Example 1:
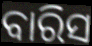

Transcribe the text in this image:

ବାରିସ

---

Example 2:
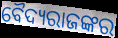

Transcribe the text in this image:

ବୈଦ୍ୟରାଜଙ୍କର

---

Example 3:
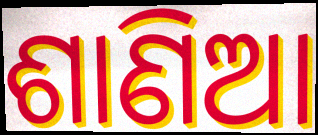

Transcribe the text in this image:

ଶାଣିଆ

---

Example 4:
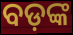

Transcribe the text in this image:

ବଡ଼ଙ୍କ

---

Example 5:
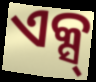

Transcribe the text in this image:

ଏକ୍ସ୍